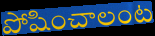
పోషించాలంట